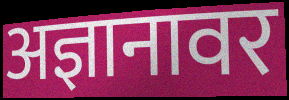
अज्ञानावर